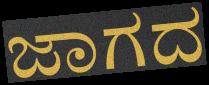
ಜಾಗದ